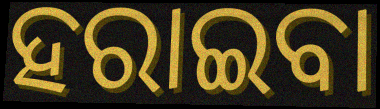
ହରାଇବା